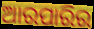
ଆରପାରିର